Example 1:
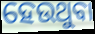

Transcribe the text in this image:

ହେଉଥୁବା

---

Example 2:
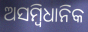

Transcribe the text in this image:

ଅସମ୍ବିଧାନିକ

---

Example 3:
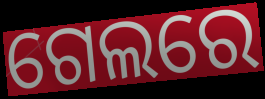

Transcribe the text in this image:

ଗେଲରେ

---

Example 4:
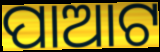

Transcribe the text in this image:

ପାଆଟ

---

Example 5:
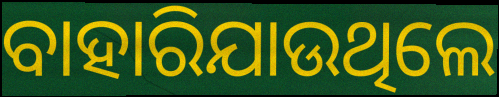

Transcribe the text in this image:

ବାହାରିଯାଉଥିଲେ